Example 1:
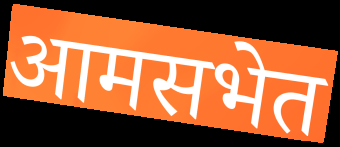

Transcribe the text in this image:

आमसभेत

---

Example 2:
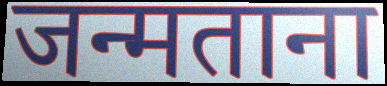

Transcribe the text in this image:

जन्मताना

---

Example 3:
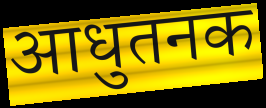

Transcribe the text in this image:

आधुतनक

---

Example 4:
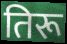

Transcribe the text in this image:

तिरू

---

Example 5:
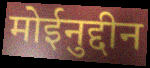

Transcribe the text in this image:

मोईनुद्दीन